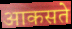
आकसते